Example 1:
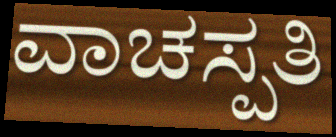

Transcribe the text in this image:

ವಾಚಸ್ಪತಿ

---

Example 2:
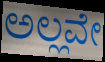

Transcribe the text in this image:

ಅಲ್ಲವೇ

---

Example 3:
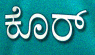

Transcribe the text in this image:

ಕೊರ್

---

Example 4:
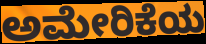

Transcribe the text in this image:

ಅಮೇರಿಕೆಯ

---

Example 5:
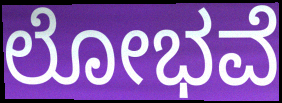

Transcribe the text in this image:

ಲೋಭವೆ